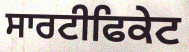
ਸਾਰਟੀਫਿਕੇਟ